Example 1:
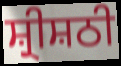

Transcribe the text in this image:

ਸ਼੍ਰੀਸ਼ਠੀ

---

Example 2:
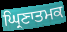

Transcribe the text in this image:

ਘ੍ਰਿਣਾਤਮਕ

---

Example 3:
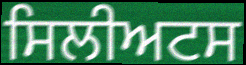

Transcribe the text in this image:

ਸਿਲੀਅਟਸ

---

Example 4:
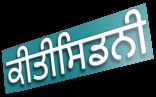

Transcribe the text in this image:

ਕੀਤੀਸਿਡਨੀ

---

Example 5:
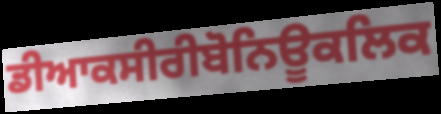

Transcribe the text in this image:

ਡੀਆਕਸੀਰੀਬੋਨਿਊਕਲਿਕ